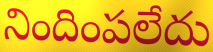
నిందింపలేదు